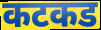
कटकड